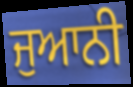
ਜੁਆਨੀ